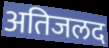
अतिजलद